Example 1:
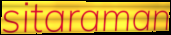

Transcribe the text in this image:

sitaraman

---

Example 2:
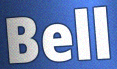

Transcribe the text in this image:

Bell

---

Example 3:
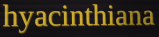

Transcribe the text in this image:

hyacinthiana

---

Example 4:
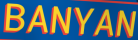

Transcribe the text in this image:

BANYAN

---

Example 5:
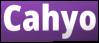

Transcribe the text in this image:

Cahyo